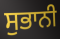
ਸੁਭਾਨੀ